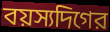
বয়স্যদিগের